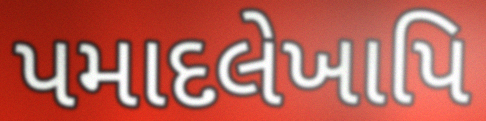
પમાદલેખાપિ